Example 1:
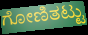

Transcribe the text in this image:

ಗೋಣಿತಟ್ಟು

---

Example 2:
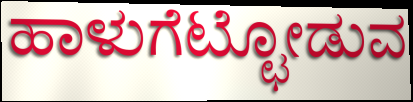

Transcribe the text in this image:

ಹಾಳುಗೆಟ್ಟೋಡುವ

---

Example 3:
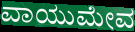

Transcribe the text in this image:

ವಾಯುಮೇವ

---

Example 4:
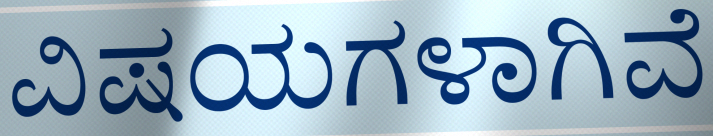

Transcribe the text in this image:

ವಿಷಯಗಳಾಗಿವೆ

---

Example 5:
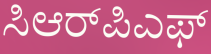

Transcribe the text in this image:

ಸಿಆರ್‌ಪಿಎಫ್